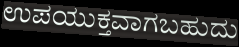
ಉಪಯುಕ್ತವಾಗಬಹುದು